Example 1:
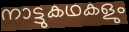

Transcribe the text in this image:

നാട്ടുകഥകളും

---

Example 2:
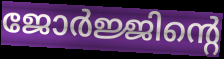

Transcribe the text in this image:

ജോർജ്ജിന്റെ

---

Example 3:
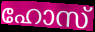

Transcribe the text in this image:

ഹോസ്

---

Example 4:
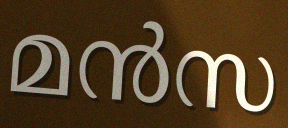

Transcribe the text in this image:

മൻസ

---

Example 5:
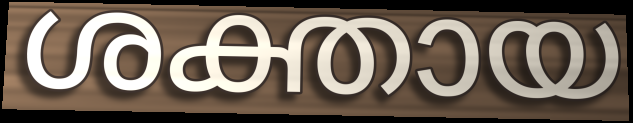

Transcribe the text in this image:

ശക്തായ